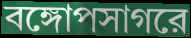
বঙ্গোপসাগরে